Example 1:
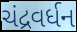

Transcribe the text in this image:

ચંદ્રવર્ધન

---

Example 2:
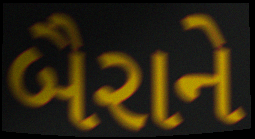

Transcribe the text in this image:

બૈરાને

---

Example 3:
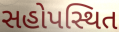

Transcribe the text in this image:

સહોપસ્થિત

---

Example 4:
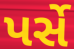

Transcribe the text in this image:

પર્સે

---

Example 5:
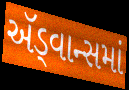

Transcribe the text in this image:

ઍડ્વાન્સમાં